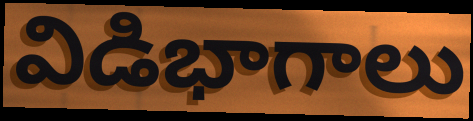
విడిభాగాలు